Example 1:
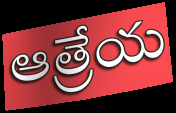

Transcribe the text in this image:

ఆత్రేయ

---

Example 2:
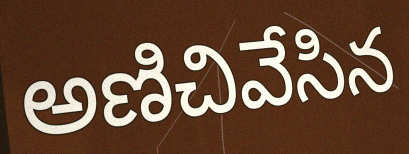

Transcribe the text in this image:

అణిచివేసిన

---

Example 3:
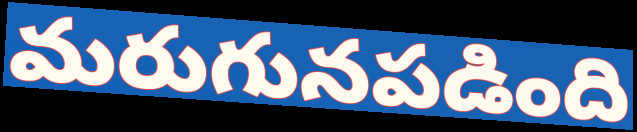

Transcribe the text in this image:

మరుగునపడింది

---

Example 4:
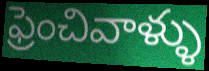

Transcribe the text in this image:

ఫ్రెంచివాళ్ళు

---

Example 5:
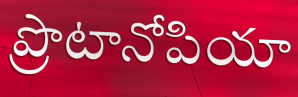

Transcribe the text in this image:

ప్రొటానోపియా